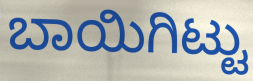
ಬಾಯಿಗಿಟ್ಟು